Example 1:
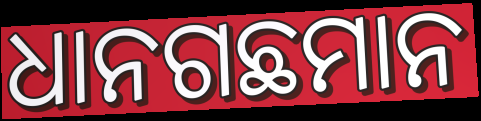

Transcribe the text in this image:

ଧାନଗଛମାନ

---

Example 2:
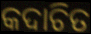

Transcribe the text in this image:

କଦାଚିତ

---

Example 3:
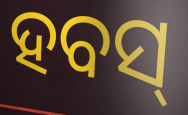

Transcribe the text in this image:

ହବସ୍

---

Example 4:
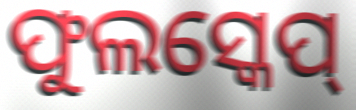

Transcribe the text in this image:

ଫୁଲସ୍କେପ୍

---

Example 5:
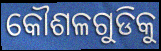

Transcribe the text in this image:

କୌଶଳଗୁଡିକୁ